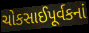
ચોકસાઈપૂર્વકનાં